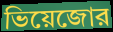
ভিয়েজোর